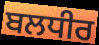
ਬਲਧੀਰ